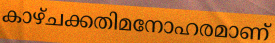
കാഴ്ചക്കതിമനോഹരമാണ്